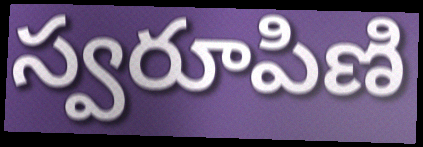
స్వరూపిణి